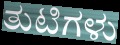
ತುಟಿಗಳು